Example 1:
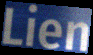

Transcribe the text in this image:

Lien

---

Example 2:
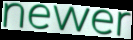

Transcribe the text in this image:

newer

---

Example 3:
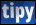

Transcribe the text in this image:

tipy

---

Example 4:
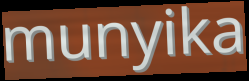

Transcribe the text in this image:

munyika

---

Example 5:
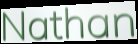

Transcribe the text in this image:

Nathan